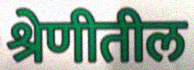
श्रेणीतील